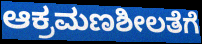
ಆಕ್ರಮಣಶೀಲತೆಗೆ